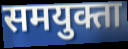
समयुक्ता